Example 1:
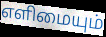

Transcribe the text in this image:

எளிமையும்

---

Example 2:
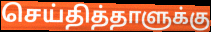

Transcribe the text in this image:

செய்தித்தாளுக்கு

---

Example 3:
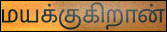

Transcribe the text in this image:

மயக்குகிறான்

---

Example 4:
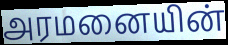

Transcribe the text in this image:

அரமனையின்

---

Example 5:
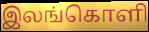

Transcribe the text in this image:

இலங்கொளி